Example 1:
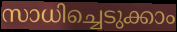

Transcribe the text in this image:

സാധിച്ചെടുക്കാം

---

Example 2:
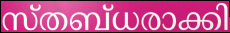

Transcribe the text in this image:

സ്തബ്ധരാക്കി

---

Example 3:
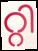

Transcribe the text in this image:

റ്റി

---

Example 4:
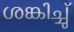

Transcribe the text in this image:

ശങ്കിച്ചു്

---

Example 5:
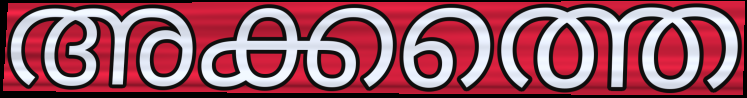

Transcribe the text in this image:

അക്കത്തെ